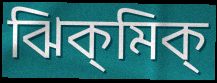
ঝিক্‌মিক্